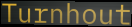
Turnhout